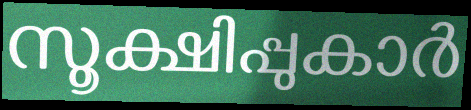
സൂക്ഷിപ്പുകാർ